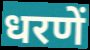
धरणें